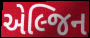
એલ્જિન